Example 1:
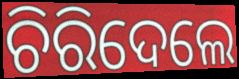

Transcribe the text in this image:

ଚିରିଦେଲେ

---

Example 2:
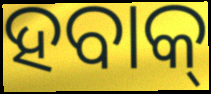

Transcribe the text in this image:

ହବାକ୍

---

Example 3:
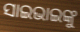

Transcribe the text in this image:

ସାଇଭାଇଙ୍କୁ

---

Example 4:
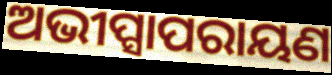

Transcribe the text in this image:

ଅଭୀପ୍ସାପରାୟଣ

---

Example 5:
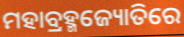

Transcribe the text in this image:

ମହାବ୍ରହ୍ମଜ୍ୟୋତିରେ